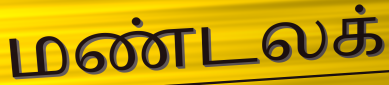
மண்டலக்